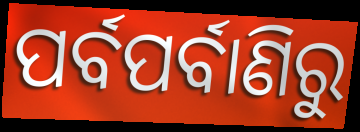
ପର୍ବପର୍ବାଣିରୁ